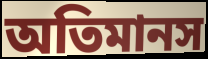
অতিমানস